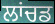
ਲਾਂਚਡ